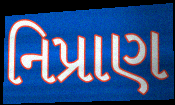
નિપ્રાણ